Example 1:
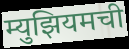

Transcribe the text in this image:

म्युझियमची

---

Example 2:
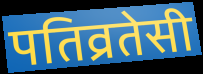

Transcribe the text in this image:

पतिव्रतेसी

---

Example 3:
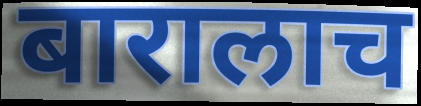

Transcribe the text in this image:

बारालाच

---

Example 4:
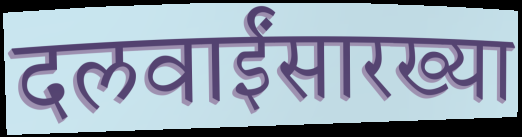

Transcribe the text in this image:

दलवाईंसारख्या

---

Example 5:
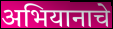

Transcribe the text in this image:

अभियानाचे